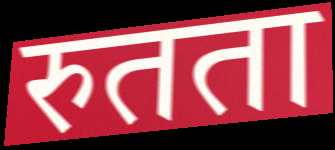
रुतता